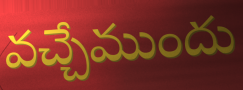
వచ్చేముందు